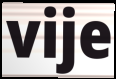
vije